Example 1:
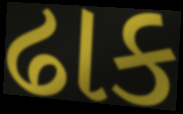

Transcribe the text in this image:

ઢાક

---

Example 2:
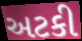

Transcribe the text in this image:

અટકી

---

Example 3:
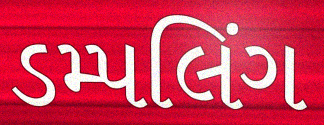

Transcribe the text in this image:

ડમ્પલિંગ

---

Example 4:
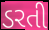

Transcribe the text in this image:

ડરતી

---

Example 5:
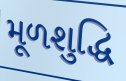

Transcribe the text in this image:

મૂળશુદ્ધિ